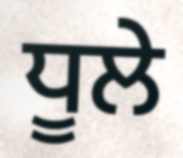
ਧੂਲੇ